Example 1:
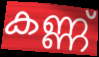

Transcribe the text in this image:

കണ്ണ്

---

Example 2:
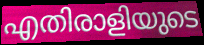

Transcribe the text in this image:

എതിരാളിയുടെ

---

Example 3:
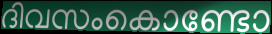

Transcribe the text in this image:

ദിവസംകൊണ്ടോ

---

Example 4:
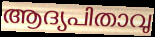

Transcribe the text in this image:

ആദ്യപിതാവു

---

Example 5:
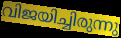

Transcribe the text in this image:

വിജയിച്ചിരുന്നു